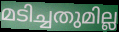
മടിച്ചതുമില്ല